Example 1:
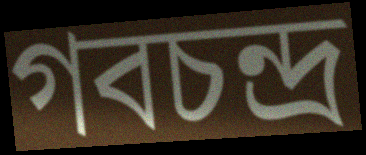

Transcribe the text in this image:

গবচন্দ্র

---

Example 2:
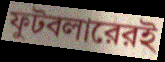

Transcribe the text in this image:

ফুটবলারেরই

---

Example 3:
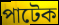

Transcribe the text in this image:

পাটেক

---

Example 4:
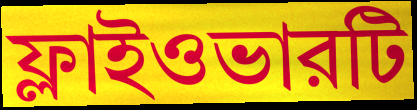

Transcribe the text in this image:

ফ্লাইওভারটি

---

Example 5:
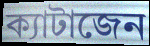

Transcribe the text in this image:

ক্যাটাজেন